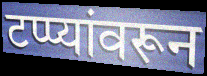
टप्प्यांवरून